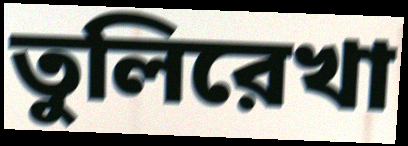
তুলিরেখা